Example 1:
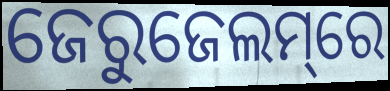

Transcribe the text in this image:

ଜେରୁଜେଲମ୍‌ରେ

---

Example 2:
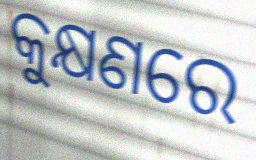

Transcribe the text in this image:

କୁକ୍ଷଣରେ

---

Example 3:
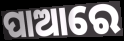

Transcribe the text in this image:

ପାଆରେ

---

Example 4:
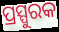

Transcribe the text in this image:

ପ୍ରସ୍ପୁରକ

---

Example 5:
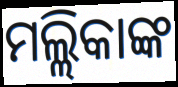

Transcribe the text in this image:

ମଲ୍ଲିକାଙ୍କ